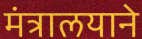
मंत्रालयाने